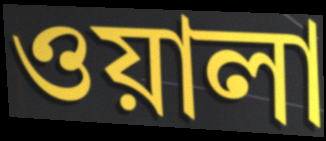
ওয়ালা